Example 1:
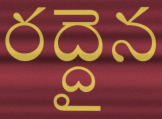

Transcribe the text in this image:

రద్దైన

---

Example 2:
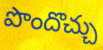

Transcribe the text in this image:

పొందొచ్చు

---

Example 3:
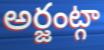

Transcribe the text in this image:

అర్జంట్గా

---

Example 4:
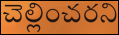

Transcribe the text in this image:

చెల్లించరని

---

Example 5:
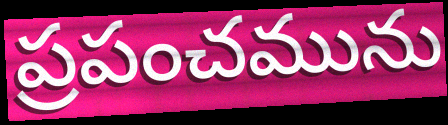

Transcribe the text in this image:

ప్రపంచమును